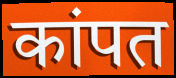
कांपत